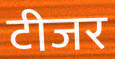
टीजर